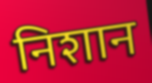
निशान